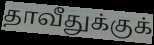
தாவீதுக்குக்